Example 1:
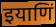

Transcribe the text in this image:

इयाणिं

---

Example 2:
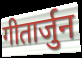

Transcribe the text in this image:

गीतार्जुन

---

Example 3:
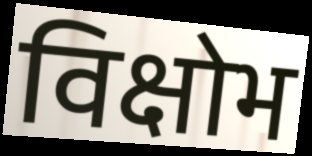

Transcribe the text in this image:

विक्षोभ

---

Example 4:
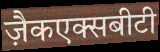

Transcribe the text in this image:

ज़ैकएक्सबीटी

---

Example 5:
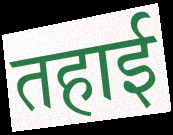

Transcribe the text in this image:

तहाई